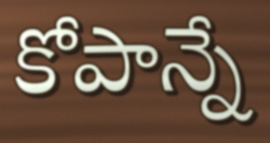
కోపాన్నే